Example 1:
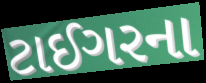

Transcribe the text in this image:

ટાઈગરના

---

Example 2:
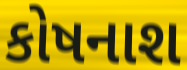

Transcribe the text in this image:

કોષનાશ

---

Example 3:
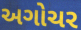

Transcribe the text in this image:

અગોચર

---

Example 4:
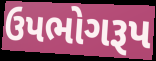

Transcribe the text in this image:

ઉપભોગરૂપ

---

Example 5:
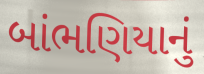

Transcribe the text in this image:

બાંભણિયાનું